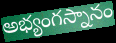
అభ్యంగస్నానం